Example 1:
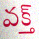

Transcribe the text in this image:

వక్త్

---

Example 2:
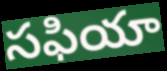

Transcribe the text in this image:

సఫియా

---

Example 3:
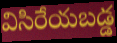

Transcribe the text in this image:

విసిరేయబడ్డ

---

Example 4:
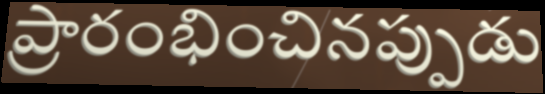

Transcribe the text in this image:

ప్రారంభించినప్పుడు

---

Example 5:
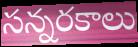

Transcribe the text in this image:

సన్నరకాలు